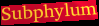
Subphylum